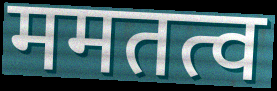
ममतत्व